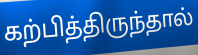
கற்பித்திருந்தால்